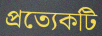
প্ৰত্যেকটি